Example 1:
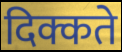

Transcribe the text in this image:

दिक्कते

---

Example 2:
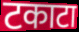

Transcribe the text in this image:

टकाटा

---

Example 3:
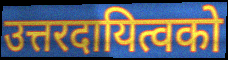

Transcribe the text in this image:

उत्तरदायित्वको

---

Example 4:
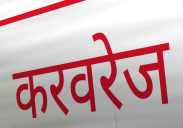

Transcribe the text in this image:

करवरेज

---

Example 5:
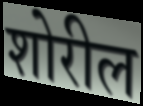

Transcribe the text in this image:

शोरील